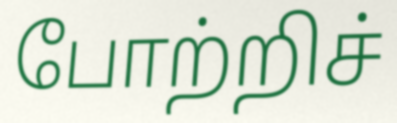
போற்றிச்